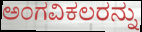
ಅಂಗವಿಕಲರನ್ನು